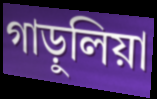
গাড়ুলিয়া